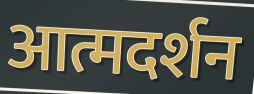
आत्मदर्शन